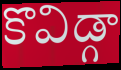
కొవిడ్గా